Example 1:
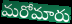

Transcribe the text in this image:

మరోమారు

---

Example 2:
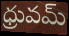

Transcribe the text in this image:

ధ్రువమ్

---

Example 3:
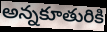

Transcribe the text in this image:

అన్నకూతురికి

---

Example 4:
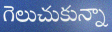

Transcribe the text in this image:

గెలుచుకున్నా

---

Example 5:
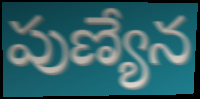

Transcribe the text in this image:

పుణ్యేన